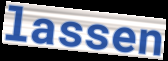
lassen